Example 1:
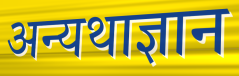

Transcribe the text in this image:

अन्यथाज्ञान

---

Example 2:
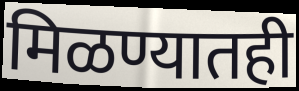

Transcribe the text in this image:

मिळण्यातही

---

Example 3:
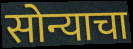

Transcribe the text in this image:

सोन्याचा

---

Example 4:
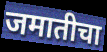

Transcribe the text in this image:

जमातीचा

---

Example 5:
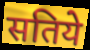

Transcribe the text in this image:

सतिये